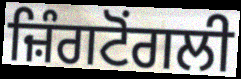
ਜ਼ਿੰਗਟੋਂਗਲੀ